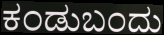
ಕಂಡುಬಂದು